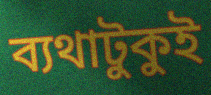
ব্যথাটুকুই